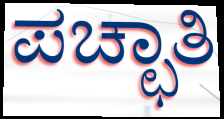
ಪಚ್ಛಾತಿ